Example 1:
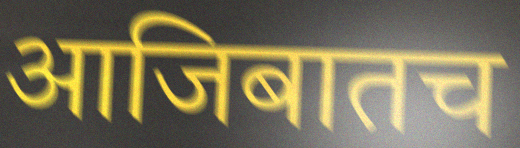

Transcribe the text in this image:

आजिबातच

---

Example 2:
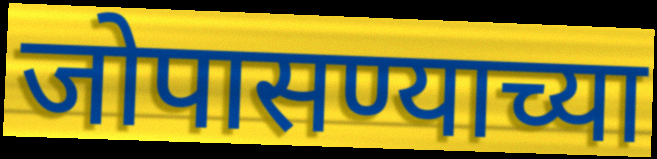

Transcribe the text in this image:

जोपासण्याच्या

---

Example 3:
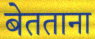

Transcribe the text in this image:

बेतताना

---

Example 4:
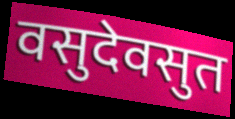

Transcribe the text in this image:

वसुदेवसुत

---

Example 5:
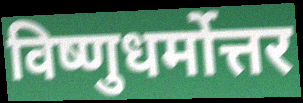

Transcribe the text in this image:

विष्णुधर्मोत्तर